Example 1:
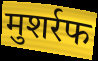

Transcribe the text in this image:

मुशर्रफ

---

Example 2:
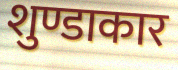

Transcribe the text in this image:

शुण्डाकार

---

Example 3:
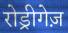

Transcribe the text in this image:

रोड्रीगेज़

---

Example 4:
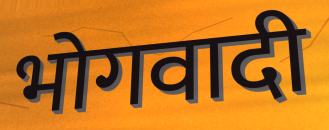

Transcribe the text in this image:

भोगवादी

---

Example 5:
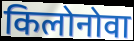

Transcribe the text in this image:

किलोनोवा